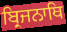
ਬ੍ਰਿਜਨਾਥਿ